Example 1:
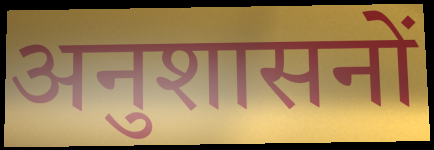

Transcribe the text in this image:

अनुशासनों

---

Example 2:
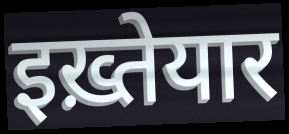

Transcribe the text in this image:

इख़्तेयार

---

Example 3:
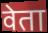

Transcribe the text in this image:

वेता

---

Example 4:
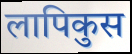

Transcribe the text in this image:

लापिकुस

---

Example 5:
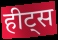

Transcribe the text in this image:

हीट्स